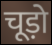
चूड़ो